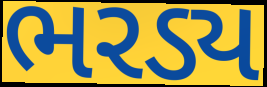
ભરડ્ય